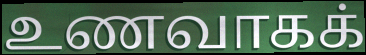
உணவாகக்